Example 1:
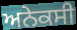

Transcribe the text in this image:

ਅਨੇਕਸੀ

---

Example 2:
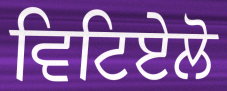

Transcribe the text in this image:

ਵਿਟਿਏਲੋ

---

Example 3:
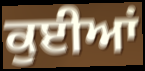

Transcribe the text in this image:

ਕੁਈਆਂ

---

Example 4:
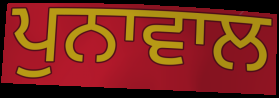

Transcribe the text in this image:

ਪੁਨਾਵਾਲ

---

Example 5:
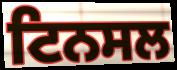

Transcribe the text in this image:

ਟਿਨਸਲ